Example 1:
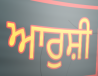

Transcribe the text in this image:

ਆਰੁਸ਼ੀ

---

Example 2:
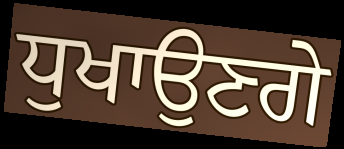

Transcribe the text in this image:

ਧੁਖਾਉਣਗੇ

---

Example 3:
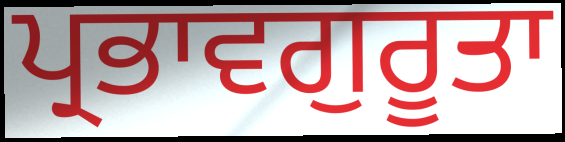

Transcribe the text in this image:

ਪ੍ਰਭਾਵਗੁਰੂਤਾ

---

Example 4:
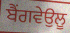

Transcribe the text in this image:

ਬੈਂਗਵੇਉਲੂ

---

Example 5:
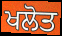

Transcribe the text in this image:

ਖਲੋਤ